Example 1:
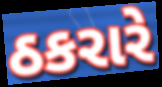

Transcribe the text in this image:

ઠકરારે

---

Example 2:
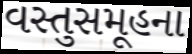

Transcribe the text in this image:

વસ્તુસમૂહના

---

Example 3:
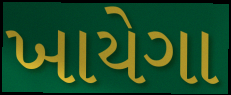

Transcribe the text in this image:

ખાયેગા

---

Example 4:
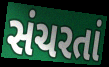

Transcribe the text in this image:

સંચરતાં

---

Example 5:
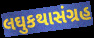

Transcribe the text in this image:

લઘુકથાસંગ્રહ